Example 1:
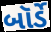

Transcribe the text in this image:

બૉર્ડે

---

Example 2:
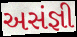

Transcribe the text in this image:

અસંજ્ઞી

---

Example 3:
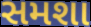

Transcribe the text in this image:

સમશા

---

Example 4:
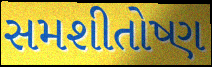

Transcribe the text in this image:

સમશીતોષ્ણ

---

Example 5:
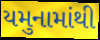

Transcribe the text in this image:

યમુનામાંથી